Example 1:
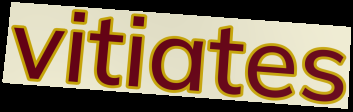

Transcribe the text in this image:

vitiates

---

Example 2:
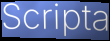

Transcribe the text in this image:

Scripta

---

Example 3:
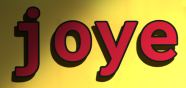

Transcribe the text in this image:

joye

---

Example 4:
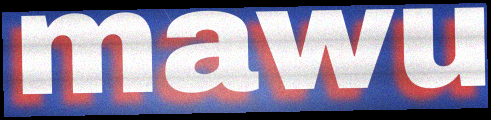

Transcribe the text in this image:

mawu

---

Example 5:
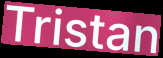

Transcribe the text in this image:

Tristan